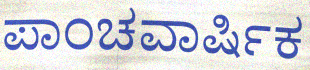
ಪಾಂಚವಾರ್ಷಿಕ